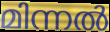
മിന്നൽ